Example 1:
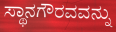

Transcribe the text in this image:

ಸ್ಥಾನಗೌರವವನ್ನು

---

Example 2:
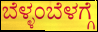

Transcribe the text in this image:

ಬೆಳ್ಳಂಬೆಳಗ್ಗೆ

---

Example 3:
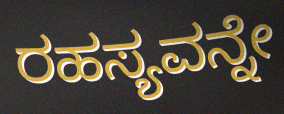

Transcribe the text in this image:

ರಹಸ್ಯವನ್ನೇ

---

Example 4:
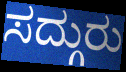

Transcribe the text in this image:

ಸದ್ಗುರು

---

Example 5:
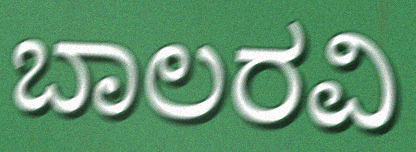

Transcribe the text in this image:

ಬಾಲರವಿ